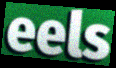
eels